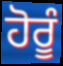
ਹੋਰੂੰ